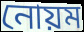
নোয়ম